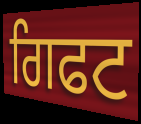
ਗਿਫਟ